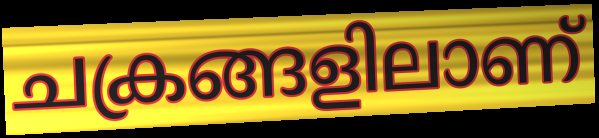
ചക്രങ്ങളിലാണ്